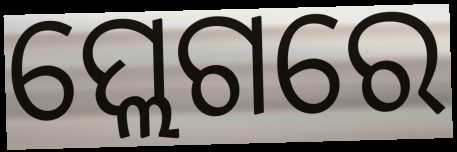
ପ୍ଲେଗରେ